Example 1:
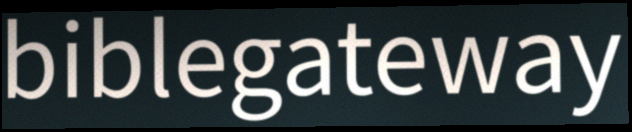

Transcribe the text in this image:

biblegateway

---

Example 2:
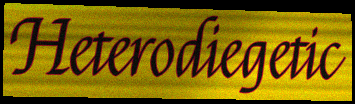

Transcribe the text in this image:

Heterodiegetic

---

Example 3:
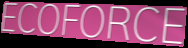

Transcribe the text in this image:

ECOFORCE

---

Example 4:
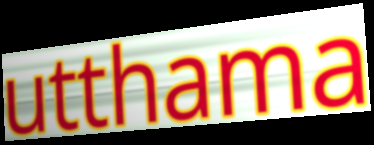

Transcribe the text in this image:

utthama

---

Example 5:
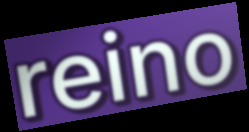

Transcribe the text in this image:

reino